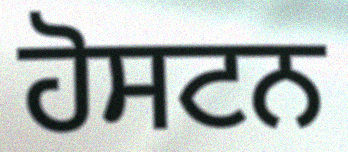
ਹੋਸਟਨ